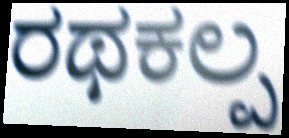
ರಥಕಲ್ಪ